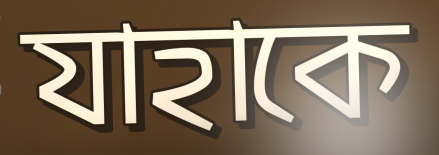
যাহাকে